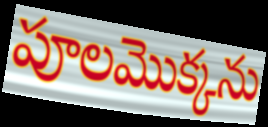
పూలమొక్కను